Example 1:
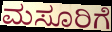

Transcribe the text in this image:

ಮಸೂರಿಗೆ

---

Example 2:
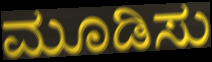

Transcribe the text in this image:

ಮೂಡಿಸು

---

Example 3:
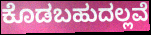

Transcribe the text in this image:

ಕೊಡಬಹುದಲ್ಲವೆ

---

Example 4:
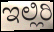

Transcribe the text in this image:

ಇಲ್ಲಿರಿ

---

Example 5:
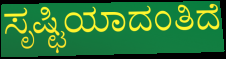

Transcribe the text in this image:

ಸೃಷ್ಟಿಯಾದಂತಿದೆ